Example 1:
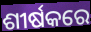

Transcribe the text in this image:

ଶୀର୍ଷକରେ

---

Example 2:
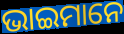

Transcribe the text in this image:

ଭାଇମାନେ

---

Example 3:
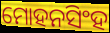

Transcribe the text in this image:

ମୋହନସିଂହ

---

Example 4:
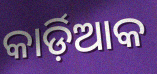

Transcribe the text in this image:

କାର୍ଡ଼ିଆକ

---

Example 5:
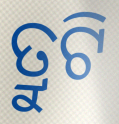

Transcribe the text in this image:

ତ୍ରୁଟି